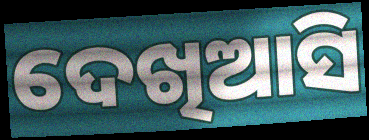
ଦେଖିଆସି